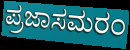
ಪ್ರಜಾಸಮರಂ